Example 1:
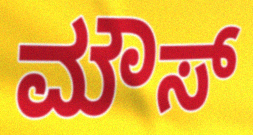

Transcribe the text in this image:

ಮೌಸ್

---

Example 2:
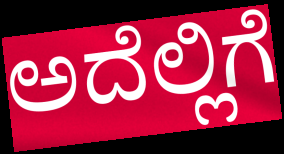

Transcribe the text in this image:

ಅದೆಲ್ಲಿಗೆ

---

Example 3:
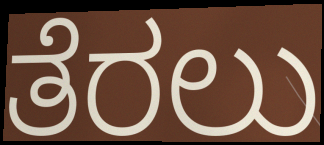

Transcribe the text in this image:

ತೆರಲು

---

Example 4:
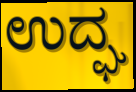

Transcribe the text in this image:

ಉದ್ಘ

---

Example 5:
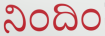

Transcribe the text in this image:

ನಿಂದಿಂ